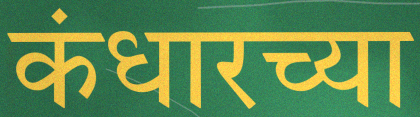
कंधारच्या